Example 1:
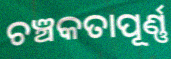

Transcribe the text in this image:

ଚଞ୍ଚକତାପୂର୍ଣ୍ଣ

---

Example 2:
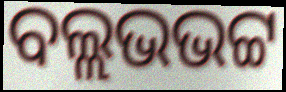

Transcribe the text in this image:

ବଲ୍ଲଭଭଟ୍ଟ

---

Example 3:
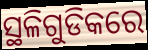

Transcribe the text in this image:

ସ୍ଥଳିଗୁଡିକରେ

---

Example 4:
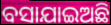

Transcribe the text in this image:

ବସାଯାଇଅଛି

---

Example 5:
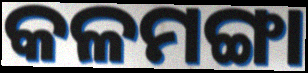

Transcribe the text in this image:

କଳମଙ୍ଗା